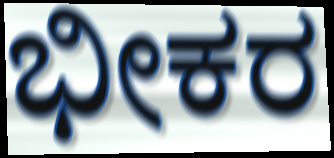
ಭೀಕರ